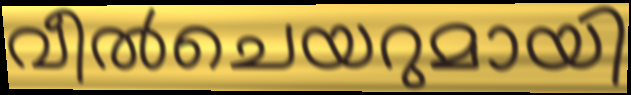
വീൽചെയറുമായി